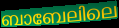
ബാബേലിലെ